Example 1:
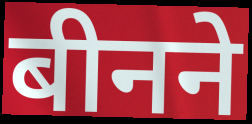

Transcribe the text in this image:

बीनने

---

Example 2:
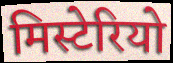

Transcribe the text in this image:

मिस्टेरियो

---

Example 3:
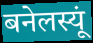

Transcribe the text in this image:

बनेलस्यूं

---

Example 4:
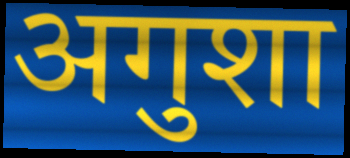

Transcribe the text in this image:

अगुशा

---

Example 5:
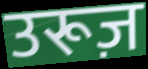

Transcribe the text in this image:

उरूज़